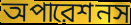
অপারেশনস